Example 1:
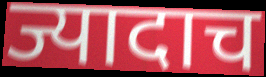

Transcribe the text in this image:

ज्यादाच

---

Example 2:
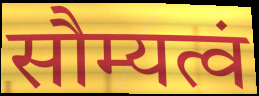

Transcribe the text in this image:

सौम्यत्वं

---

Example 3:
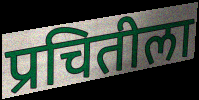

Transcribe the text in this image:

प्रचितीला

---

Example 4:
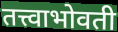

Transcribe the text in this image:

तत्त्वाभोवती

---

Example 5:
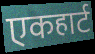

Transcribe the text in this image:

एकहार्ट